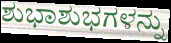
ಶುಭಾಶುಭಗಳನ್ನು